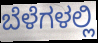
ಬೆಳೆಗಳಲ್ಲಿ